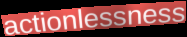
actionlessness